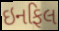
ઇનફિલ